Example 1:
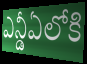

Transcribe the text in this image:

ఎన్డీఏలోకి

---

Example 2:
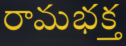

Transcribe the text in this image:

రామభక్త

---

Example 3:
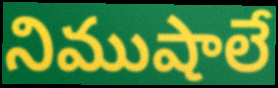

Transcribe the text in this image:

నిముషాలే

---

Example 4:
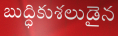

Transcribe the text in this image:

బుద్ధికుశలుడైన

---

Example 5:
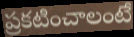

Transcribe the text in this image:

ప్రకటించాలంటే